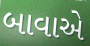
બાવાએ